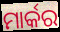
ମାର୍କର